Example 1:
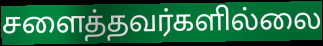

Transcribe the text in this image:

சளைத்தவர்களில்லை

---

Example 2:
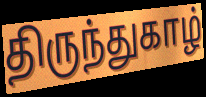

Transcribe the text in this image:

திருந்துகாழ்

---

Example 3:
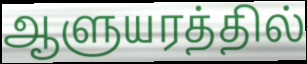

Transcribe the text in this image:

ஆளுயரத்தில்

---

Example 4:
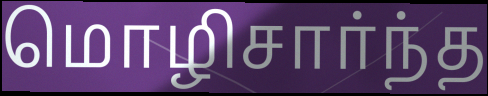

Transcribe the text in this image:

மொழிசார்ந்த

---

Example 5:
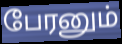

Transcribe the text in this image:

பேரனும்